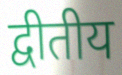
द्वीतीय